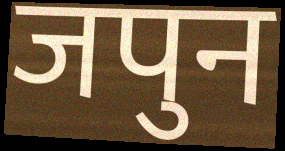
जपुन